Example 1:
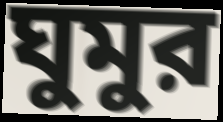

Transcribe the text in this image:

ঘুমুর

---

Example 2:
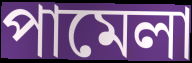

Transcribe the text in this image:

পামেলা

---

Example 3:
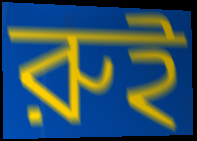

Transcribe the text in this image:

রুই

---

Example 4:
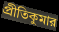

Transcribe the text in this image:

প্রীতিকুমার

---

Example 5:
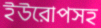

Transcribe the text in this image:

ইউরোপসহ